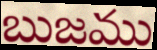
బుజము